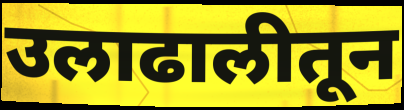
उलाढालीतून